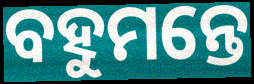
ବହୁମନ୍ତେ